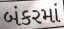
બંકરમાં